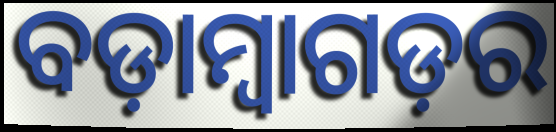
ବଡ଼ାମ୍ବାଗଡ଼ର